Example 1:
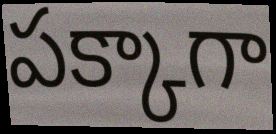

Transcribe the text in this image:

పక్కాగా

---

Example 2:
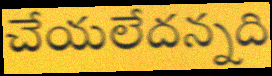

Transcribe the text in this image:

చేయలేదన్నది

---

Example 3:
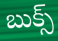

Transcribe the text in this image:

బుక్స్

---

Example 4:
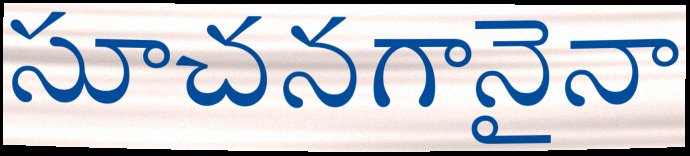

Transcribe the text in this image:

సూచనగానైనా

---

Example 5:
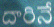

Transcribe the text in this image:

దారినే